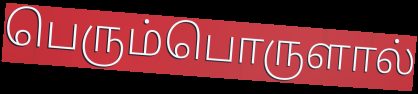
பெரும்பொருளால்